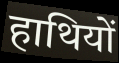
हाथियों